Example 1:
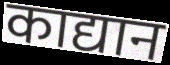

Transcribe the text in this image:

काद्यान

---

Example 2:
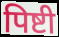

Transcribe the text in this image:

पिष्टी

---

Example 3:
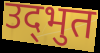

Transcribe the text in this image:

उद्भुत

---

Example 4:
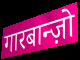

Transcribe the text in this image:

गारबान्ज़ो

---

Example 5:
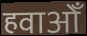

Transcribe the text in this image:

हवाओँ